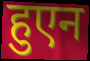
हुएन